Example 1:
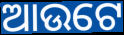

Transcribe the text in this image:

ଆଉଟେ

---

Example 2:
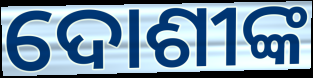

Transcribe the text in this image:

ଦୋଶୀଙ୍କ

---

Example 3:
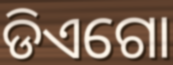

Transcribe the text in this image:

ଡିଏଗୋ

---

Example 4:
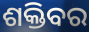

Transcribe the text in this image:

ଶକ୍ତିବର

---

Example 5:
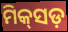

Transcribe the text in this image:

ମିକ୍‌ସଡ଼